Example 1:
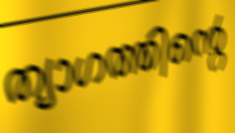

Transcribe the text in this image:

ത്യാഗത്തിന്റെ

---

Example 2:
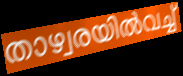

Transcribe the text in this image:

താഴ്വരയിൽവച്ച്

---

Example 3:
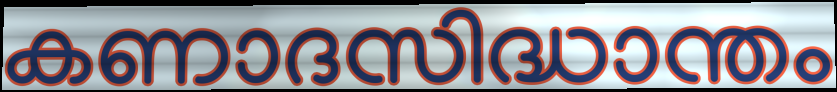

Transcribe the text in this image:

കണാദസിദ്ധാന്തം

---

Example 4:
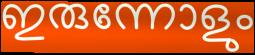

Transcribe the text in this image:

ഇരുന്നോളും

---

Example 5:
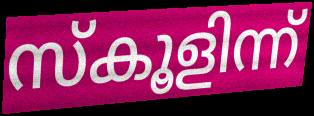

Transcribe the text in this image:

സ്കൂളിന്ന്